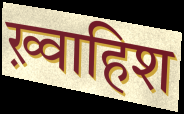
ख़्वाहिश